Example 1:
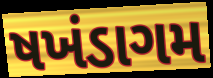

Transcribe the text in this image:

ષખંડાગમ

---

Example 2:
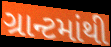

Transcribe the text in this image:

ગ્રાન્ટમાંથી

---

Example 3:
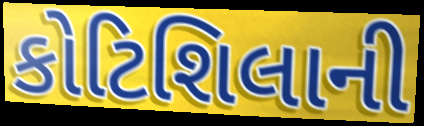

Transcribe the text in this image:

કોટિશિલાની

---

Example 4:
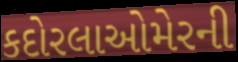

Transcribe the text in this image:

કદોરલાઓમેરની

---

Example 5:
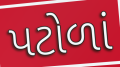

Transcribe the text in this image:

પટોળાં